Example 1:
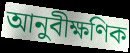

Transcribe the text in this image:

আনুবীক্ষণিক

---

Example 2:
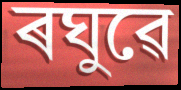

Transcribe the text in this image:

ৰঘুৱে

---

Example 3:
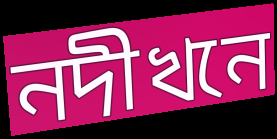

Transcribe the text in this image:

নদীখনে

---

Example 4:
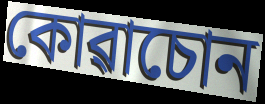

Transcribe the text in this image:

কোৱাচোন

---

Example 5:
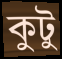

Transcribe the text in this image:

কুটু